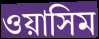
ওয়াসিম